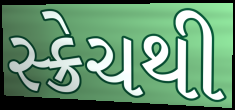
સ્ક્રેચથી